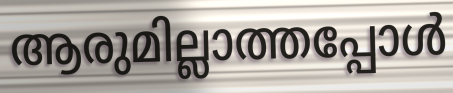
ആരുമില്ലാത്തപ്പോൾ